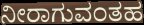
ನೀರಾಗುವಂತಹ